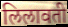
लिलावती